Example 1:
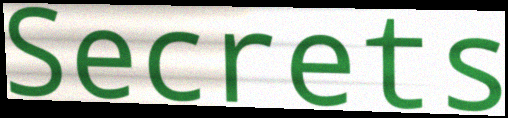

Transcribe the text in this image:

Secrets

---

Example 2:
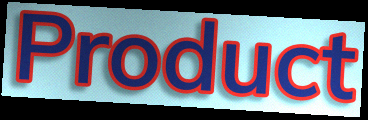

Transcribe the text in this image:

Product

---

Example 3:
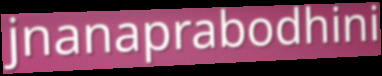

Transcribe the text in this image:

jnanaprabodhini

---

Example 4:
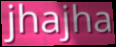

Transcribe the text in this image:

jhajha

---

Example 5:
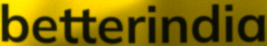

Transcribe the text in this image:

betterindia